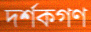
দর্শকগণ